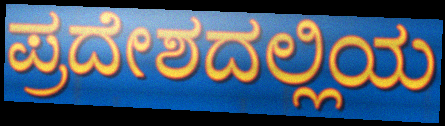
ಪ್ರದೇಶದಲ್ಲಿಯ